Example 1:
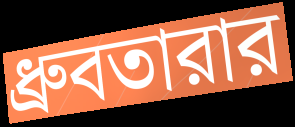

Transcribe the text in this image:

ধ্রুবতারার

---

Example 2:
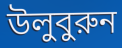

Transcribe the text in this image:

উলুবুরুন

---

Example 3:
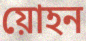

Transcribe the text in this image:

য়োহন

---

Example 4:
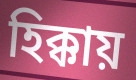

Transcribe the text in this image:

হিক্কায়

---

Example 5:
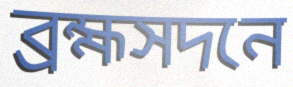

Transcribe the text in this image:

ব্রহ্মসদনে